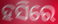
ହସିରେ